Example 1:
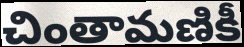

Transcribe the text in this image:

చింతామణికీ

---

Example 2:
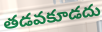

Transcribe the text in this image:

తడవకూడదు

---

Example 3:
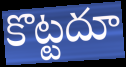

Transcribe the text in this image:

కొట్టదూ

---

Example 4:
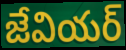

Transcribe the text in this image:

జేవియర్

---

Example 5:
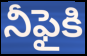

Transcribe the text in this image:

నీఫైకి